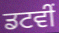
ਡਟਵੀਂ